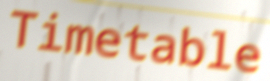
Timetable